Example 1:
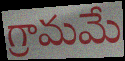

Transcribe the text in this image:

గ్రామమే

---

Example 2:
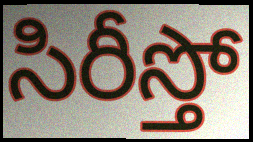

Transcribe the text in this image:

సిరీస్తో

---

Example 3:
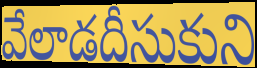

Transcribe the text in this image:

వేలాడదీసుకుని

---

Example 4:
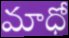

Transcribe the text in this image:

మాధో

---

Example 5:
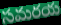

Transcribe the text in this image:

సమరయ